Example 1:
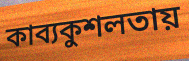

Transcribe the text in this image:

কাব্যকুশলতায়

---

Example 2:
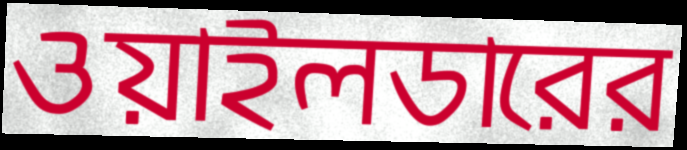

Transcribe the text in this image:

ওয়াইলডারের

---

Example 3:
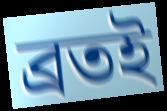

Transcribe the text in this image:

ব্রতই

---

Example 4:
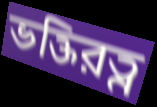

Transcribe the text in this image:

ভক্তিরত্ন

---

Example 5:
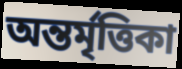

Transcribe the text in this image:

অন্তর্মৃত্তিকা